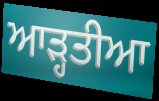
ਆੜ੍ਹਤੀਆ